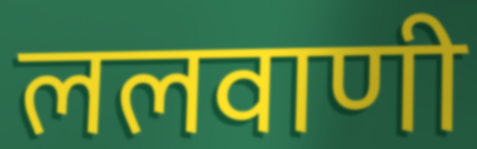
ललवाणी